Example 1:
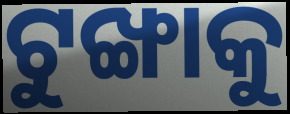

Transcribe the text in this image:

ଟୁଙ୍ଖାକୁ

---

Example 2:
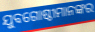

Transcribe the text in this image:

ଯୁବଗୋଷ୍ଠୀମାନଙ୍କର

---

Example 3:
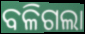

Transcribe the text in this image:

ବଳିଗଲା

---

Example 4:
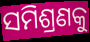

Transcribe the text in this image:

ସମିଶ୍ରଣକୁ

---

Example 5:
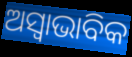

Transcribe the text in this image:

ଅସ୍ଵାଭାବିକ